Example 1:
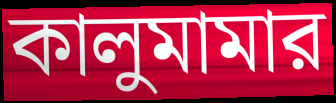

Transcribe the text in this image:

কালুমামার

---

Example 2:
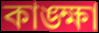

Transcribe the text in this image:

কাঙ্ক্ষা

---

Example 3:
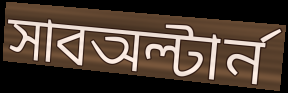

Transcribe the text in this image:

সাবঅল্টার্ন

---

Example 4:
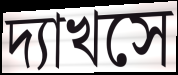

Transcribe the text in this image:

দ্যাখসে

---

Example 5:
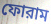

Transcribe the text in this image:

ফোরাম